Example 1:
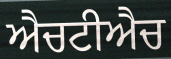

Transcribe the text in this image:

ਐਚਟੀਐਚ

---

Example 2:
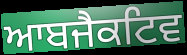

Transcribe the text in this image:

ਆਬਜੈਕਟਿਵ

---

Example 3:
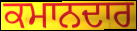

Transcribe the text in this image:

ਕਮਾਨਦਾਰ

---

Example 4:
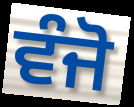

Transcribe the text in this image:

ਵੰਜੋ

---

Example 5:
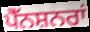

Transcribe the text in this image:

ਪੈੱਨਸ਼ਨਰਾਂ